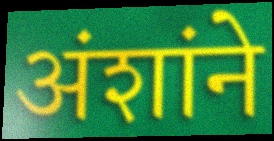
अंशांने